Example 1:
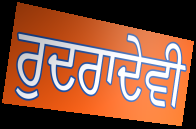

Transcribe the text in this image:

ਰੁਦਰਾਦੇਵੀ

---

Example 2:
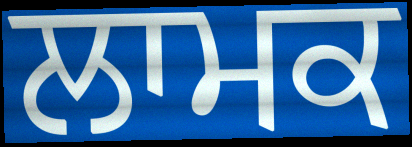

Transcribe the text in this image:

ਲਾਮਕ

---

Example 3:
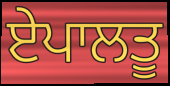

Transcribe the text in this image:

ਏਪਾਲਤੂ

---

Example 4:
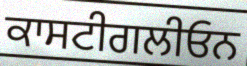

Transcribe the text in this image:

ਕਾਸਟੀਗਲੀਓਨ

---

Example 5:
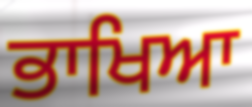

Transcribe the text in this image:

ਭਾਖਿਆ